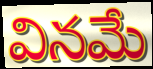
వినమే